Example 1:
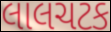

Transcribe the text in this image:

લાલચટક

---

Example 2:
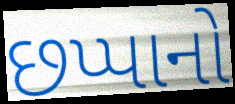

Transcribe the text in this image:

છપ્પાનો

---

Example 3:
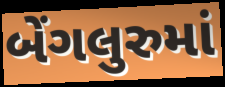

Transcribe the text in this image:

બેંગલુરુમાં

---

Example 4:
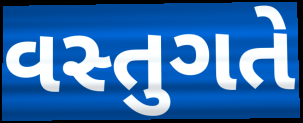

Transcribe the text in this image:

વસ્તુગતે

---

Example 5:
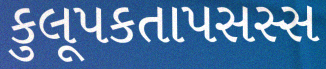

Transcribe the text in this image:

કુલૂપકતાપસસ્સ